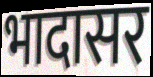
भादासर